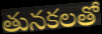
తునకలతో